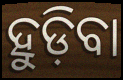
ହୁଡ଼ିବା